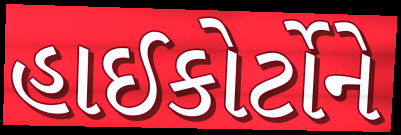
હાઈકોર્ટોને